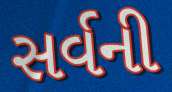
સર્વની